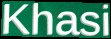
Khasi